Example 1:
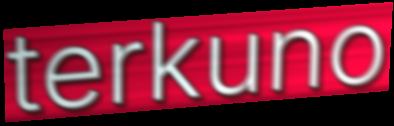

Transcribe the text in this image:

terkuno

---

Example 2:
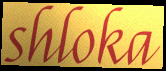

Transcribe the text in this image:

shloka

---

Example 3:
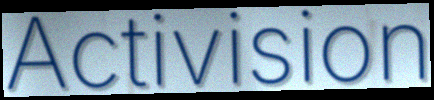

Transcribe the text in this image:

Activision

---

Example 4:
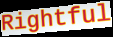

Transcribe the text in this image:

Rightful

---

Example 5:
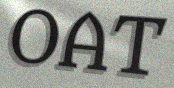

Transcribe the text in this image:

OAT